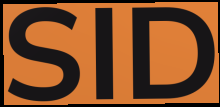
SID